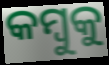
କମ୍ବୁକୁ